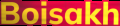
Boisakh